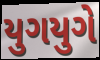
યુગયુગે